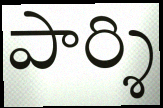
పార్శి